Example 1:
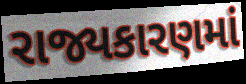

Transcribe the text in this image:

રાજ્યકારણમાં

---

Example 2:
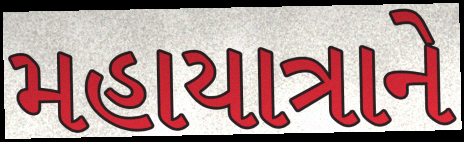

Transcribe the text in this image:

મહાયાત્રાને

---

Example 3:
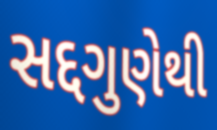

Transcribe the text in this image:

સદ્દગુણેથી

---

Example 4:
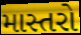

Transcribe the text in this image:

માસ્તરો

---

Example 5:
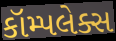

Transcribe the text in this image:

કૉમ્પલેક્સ